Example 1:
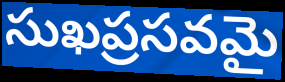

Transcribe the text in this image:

సుఖప్రసవమై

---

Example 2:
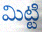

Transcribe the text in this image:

మిట్టి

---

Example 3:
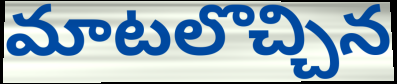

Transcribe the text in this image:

మాటలొచ్చిన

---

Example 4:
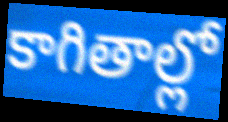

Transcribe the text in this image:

కాగితాల్లో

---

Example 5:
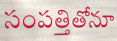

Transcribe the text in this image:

సంపత్తితోనూ